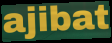
ajibat